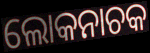
ଲୋକନାଚକ